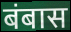
बंबास